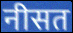
नीसत